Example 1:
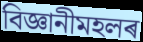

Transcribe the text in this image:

বিজ্ঞানীমহলৰ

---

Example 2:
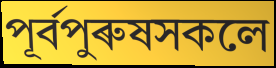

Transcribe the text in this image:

পূৰ্বপুৰুষসকলে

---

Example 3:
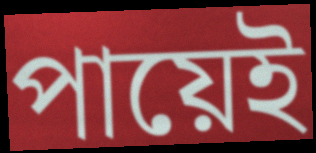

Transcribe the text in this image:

পায়েই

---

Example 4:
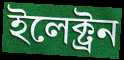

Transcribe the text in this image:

ইলেক্ট্ৰন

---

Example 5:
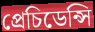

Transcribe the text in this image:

প্ৰেচিডেন্সি